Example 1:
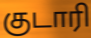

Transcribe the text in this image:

குடாரி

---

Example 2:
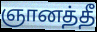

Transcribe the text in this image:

ஞானத்தீ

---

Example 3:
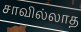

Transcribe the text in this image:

சாவில்லாத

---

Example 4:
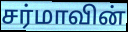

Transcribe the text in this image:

சர்மாவின்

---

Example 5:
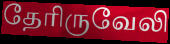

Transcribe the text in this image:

தேரிருவேலி